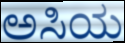
ಅಸಿಯ